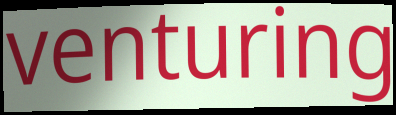
venturing